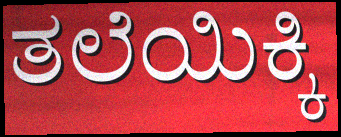
ತಲೆಯಿಕ್ಕಿ